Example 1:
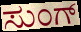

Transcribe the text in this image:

ಸುಂಗ್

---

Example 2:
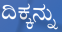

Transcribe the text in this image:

ದಿಕ್ಕನ್ನು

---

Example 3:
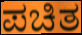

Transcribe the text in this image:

ಪಚಿತ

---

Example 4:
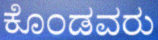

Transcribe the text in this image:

ಕೊಂಡವರು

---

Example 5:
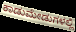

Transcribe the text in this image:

ಕಾಡುಮೇಡುಗಳಲ್ಲಿ